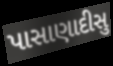
પાસાણાદીસુ